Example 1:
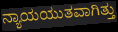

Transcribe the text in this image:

ನ್ಯಾಯಯುತವಾಗಿತ್ತು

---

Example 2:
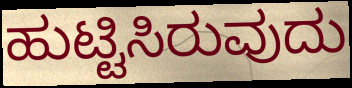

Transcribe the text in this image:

ಹುಟ್ಟಿಸಿರುವುದು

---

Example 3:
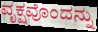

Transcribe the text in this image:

ವೃಕ್ಷವೊಂದನ್ನು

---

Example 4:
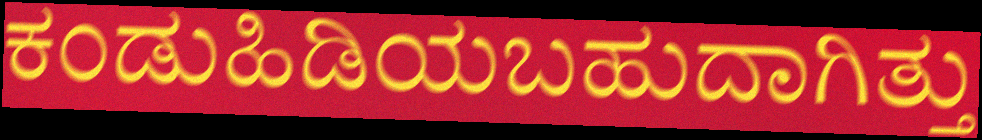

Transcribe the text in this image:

ಕಂಡುಹಿಡಿಯಬಹುದಾಗಿತ್ತು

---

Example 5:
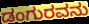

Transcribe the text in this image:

ಡಂಗುರವನು